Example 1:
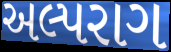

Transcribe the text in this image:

અલ્પરાગ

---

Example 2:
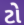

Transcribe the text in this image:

ટો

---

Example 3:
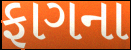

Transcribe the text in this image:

ફાગના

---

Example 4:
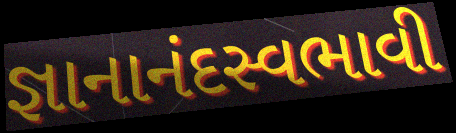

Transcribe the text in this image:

જ્ઞાનાનંદસ્વભાવી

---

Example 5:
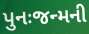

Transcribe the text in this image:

પુનઃજન્મની